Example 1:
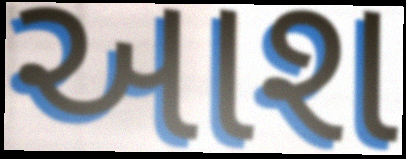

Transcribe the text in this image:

આશ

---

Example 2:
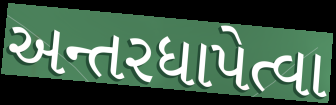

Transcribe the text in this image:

અન્તરધાપેત્વા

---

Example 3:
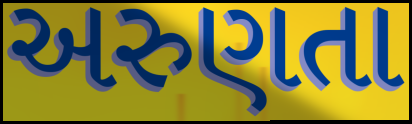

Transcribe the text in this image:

અરુણતા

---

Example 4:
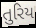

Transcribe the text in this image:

તુરિય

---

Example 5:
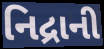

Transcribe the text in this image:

નિદ્રાની